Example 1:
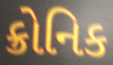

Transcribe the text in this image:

ક્રોનિક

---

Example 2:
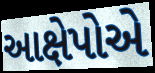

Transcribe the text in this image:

આક્ષેપોએ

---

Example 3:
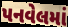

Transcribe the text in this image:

પનવેલમાં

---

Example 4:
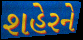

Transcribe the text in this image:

શહેરને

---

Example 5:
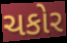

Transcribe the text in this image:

ચકોર